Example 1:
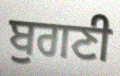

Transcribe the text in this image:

ਬੁਗਣੀ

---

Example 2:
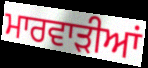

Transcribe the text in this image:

ਮਾਰਵਾੜੀਆਂ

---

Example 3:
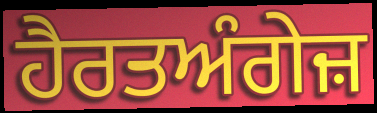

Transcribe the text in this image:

ਹੈਰਤਅੰਗੇਜ਼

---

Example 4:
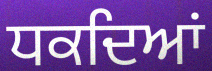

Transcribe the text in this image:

ਧਕਦਿਆਂ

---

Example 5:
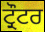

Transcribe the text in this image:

ਟ੍ਰੌਟਰ